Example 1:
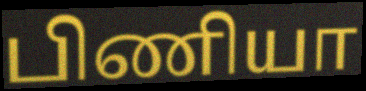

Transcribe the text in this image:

பிணியா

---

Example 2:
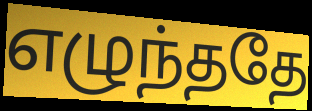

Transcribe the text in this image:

எழுந்ததே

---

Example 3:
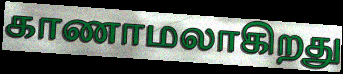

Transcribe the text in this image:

காணாமலாகிறது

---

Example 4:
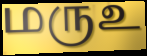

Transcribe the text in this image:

மருஉ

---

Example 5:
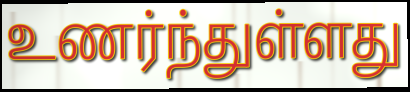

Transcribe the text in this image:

உணர்ந்துள்ளது